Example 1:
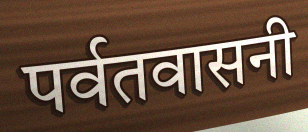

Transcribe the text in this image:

पर्वतवासनी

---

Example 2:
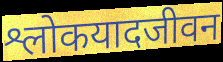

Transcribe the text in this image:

श्लोकयादजीवन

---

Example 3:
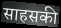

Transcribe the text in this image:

साहसकी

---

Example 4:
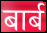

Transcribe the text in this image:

बार्ब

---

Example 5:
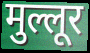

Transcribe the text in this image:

मुल्लूर